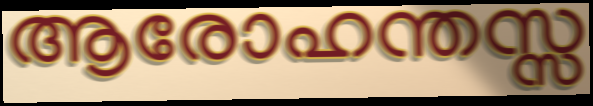
ആരോഹന്തസ്സ